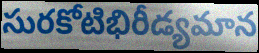
సురకోటిభిరీడ్యమాన